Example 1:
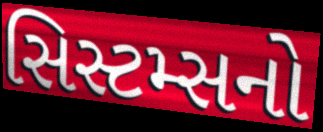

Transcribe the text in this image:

સિસ્ટમ્સનો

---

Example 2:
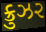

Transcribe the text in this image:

ક્રુઝર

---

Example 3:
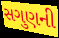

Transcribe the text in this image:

સગુણની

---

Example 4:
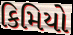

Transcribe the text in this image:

કિમિયો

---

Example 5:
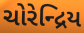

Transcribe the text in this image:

ચોરેન્દ્રિય